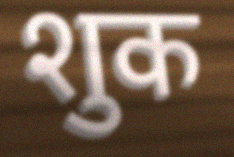
शुक